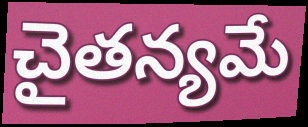
చైతన్యమే